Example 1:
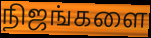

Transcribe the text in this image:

நிஜங்களை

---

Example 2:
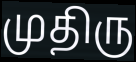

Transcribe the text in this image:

முதிரு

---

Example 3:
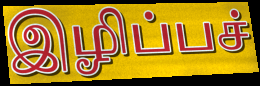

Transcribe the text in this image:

இழிப்பச்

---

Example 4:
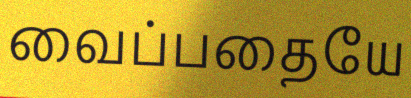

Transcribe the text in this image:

வைப்பதையே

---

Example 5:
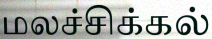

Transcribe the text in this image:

மலச்சிக்கல்